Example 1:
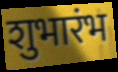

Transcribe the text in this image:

शुभारंभ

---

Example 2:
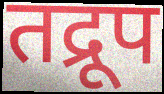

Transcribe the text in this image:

तद्रूप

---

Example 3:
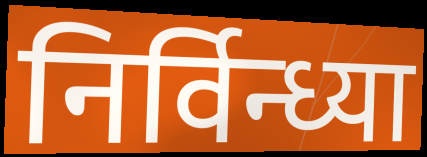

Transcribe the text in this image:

निर्विन्ध्या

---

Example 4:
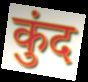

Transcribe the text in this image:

कुंद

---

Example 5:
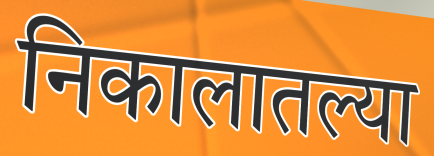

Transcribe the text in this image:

निकालातल्या